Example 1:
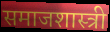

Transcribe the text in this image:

समाजशास्त्री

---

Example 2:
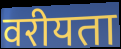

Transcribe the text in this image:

वरीयता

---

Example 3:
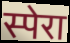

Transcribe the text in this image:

स्पेरा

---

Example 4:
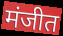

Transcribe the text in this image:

मंजीत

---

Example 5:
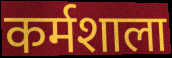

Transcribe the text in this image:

कर्मशाला